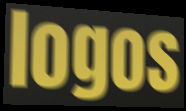
logos